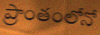
ప్రాంతంలోనో